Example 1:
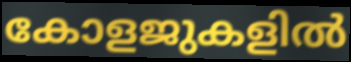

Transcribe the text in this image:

കോളജുകളിൽ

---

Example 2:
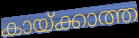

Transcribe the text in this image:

കായ്ക്കാത്ത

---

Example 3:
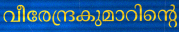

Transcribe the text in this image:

വീരേന്ദ്രകുമാറിന്റെ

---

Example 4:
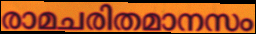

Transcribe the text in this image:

രാമചരിതമാനസം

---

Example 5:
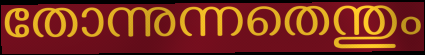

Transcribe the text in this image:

തോന്നുന്നതെന്തും